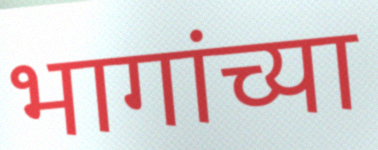
भागांच्या